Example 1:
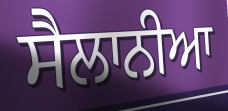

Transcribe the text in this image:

ਸੈਲਾਨੀਆ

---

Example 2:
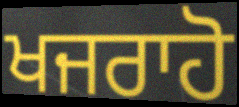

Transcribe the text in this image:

ਖਜਰਾਹੋ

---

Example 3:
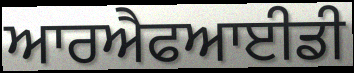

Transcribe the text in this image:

ਆਰਐਫਆਈਡੀ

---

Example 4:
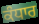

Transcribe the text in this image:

ਕੰਧਾਰ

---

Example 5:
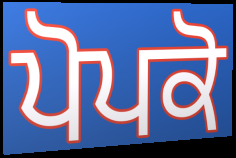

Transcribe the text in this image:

ਪੋਪਕੋ